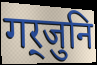
गर्जुनि